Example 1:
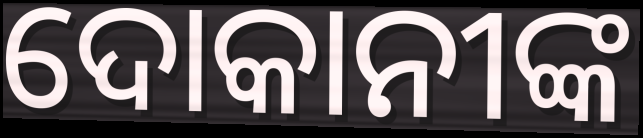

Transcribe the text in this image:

ଦୋକାନୀଙ୍କ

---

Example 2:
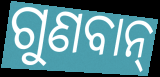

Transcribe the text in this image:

ଗୁଣବାନ୍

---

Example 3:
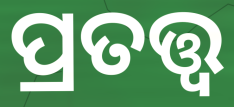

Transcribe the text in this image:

ପ୍ରତତ୍ତ୍ୱ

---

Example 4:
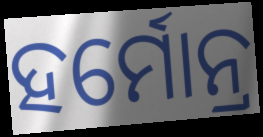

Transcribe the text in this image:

ହର୍ମୋନ୍ର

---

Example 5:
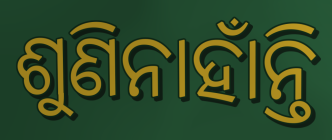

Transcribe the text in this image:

ଶୁଣିନାହାଁନ୍ତି